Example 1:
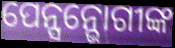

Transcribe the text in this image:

ପେନ୍ସନ୍ଭୋଗୀଙ୍କ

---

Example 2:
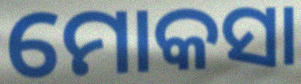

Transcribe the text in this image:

ମୋକସା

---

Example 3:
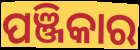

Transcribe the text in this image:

ପଞ୍ଜିକାର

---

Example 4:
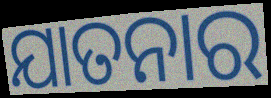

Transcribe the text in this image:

ଯାତନାର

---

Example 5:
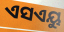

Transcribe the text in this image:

ଏସଏୟୁ